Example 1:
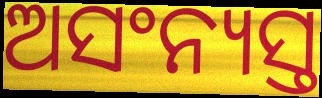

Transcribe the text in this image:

ଅସଂନ୍ୟସ୍ତ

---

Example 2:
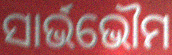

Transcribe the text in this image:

ସାର୍ଭଭୌମ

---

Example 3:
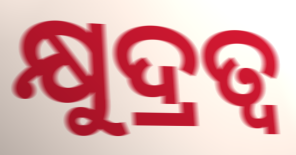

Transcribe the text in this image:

କ୍ଷୁଦ୍ରତ୍ୱ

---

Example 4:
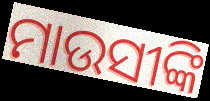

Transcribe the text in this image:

ମାଉସୀଙ୍କି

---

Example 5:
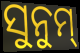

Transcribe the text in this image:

ସୁନୁମ୍